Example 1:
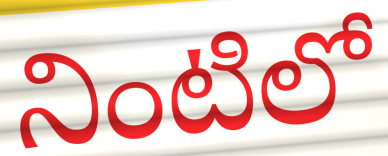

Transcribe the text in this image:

నింటిలో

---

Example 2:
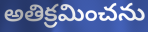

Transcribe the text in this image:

అతిక్రమించను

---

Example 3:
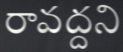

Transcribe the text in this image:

రావద్దని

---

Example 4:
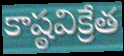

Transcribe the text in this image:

కాష్ఠవిక్రేత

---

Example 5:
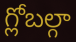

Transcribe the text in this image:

గ్లోబల్గా